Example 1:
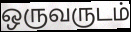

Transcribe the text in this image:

ஒருவருடம்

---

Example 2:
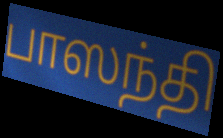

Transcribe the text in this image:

பாஸந்தி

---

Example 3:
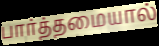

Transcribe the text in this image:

பார்த்தமையால்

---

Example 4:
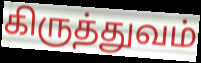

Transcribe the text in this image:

கிருத்துவம்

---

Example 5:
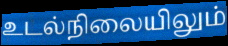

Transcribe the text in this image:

உடல்நிலையிலும்